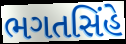
ભગતસિંહે